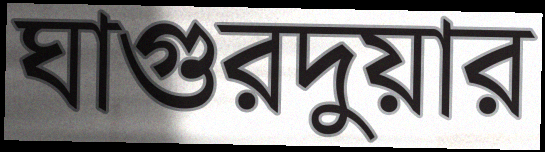
ঘাগুরদুয়ার